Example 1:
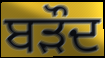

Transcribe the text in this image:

ਬੜੌਦ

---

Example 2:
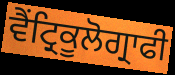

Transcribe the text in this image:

ਵੈਂਟ੍ਰਿਕੂਲੋਗ੍ਰਾਫੀ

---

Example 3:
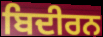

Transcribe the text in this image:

ਬਿਦੀਰਨ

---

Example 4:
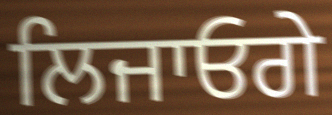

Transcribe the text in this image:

ਲਿਜਾਓਗੇ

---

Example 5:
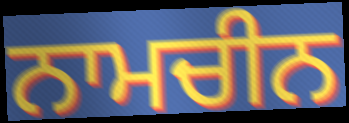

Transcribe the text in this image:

ਨਾਮਚੀਨ